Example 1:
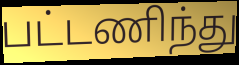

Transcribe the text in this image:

பட்டணிந்து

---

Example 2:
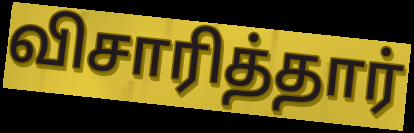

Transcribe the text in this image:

விசாரித்தார்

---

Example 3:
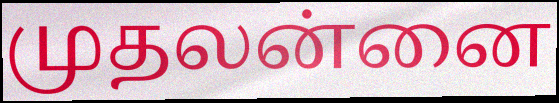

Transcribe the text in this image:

முதலன்னை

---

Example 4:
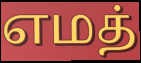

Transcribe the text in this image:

எமத்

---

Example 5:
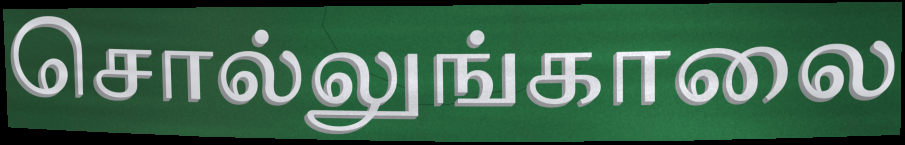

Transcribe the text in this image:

சொல்லுங்காலை